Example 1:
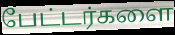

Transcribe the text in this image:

பேட்டர்களை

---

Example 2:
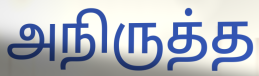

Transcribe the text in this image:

அநிருத்த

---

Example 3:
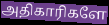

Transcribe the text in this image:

அதிகாரிகளே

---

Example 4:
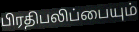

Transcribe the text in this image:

பிரதிபலிப்பையும்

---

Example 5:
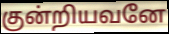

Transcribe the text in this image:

குன்றியவனே